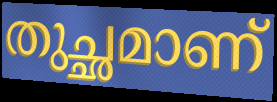
തുച്ഛമാണ്